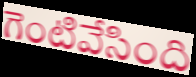
గెంటివేసింది